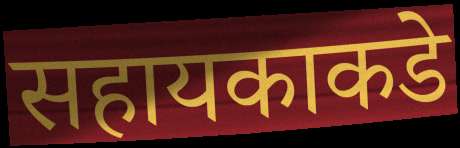
सहायकाकडे